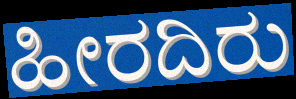
ಹೀರದಿರು